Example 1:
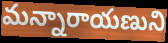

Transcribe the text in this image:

మన్నారాయణుని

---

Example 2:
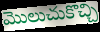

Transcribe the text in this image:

మొలుచుకొచ్చి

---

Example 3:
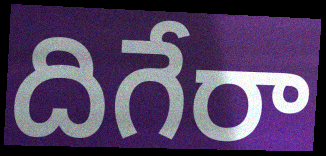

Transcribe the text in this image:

దిగేరా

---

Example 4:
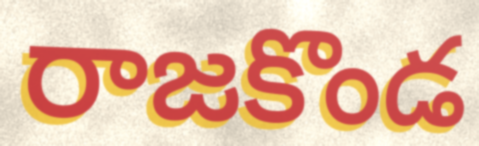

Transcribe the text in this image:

రాజకొండ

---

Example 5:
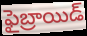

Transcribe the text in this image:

ఫైబ్రాయిడ్